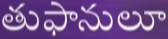
తుఫానులూ